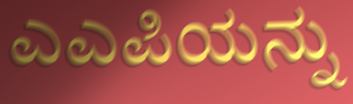
ಎಎಪಿಯನ್ನು